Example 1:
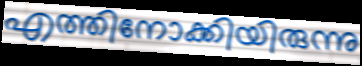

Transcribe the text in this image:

എത്തിനോക്കിയിരുന്നു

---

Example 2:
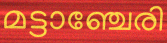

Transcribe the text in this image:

മട്ടാഞ്ചേരി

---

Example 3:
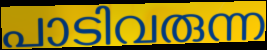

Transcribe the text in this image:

പാടിവരുന്ന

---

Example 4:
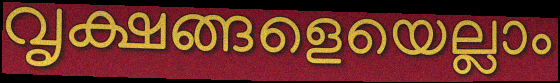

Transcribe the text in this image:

വൃക്ഷങ്ങളെയെല്ലാം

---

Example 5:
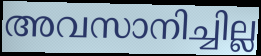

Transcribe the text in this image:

അവസാനിച്ചില്ല